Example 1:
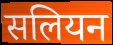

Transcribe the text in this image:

सलियन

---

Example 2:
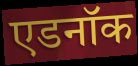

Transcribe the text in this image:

एडनॉक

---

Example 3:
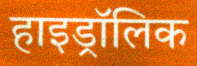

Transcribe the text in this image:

हाइड्रॉलिक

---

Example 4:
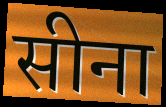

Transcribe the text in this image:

सीना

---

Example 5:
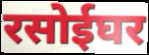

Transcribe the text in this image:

रसोईघर